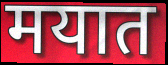
मयात